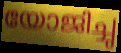
യോജിച്ചു